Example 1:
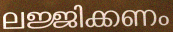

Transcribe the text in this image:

ലജ്ജിക്കണം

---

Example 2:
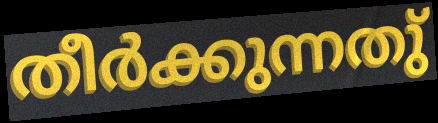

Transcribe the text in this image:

തീർക്കുന്നതു്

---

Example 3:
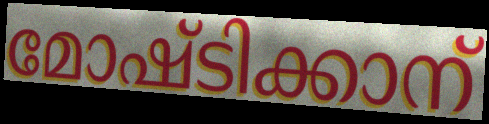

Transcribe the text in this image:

മോഷ്ടിക്കാന്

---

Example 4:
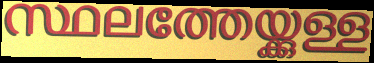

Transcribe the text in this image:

സ്ഥലത്തേയ്ക്കുള്ള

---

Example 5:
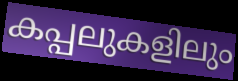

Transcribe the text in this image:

കപ്പലുകളിലും